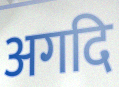
अगदि